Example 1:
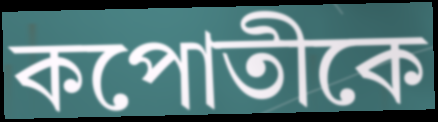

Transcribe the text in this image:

কপোতীকে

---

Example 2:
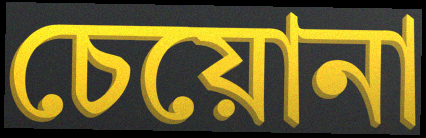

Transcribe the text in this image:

চেয়োনা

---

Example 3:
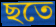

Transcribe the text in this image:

ছতে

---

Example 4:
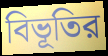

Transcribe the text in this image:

বিভূতির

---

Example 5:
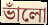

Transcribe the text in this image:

ভাঁলো